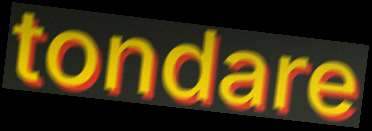
tondare